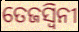
ତେଜସ୍ଵିନୀ